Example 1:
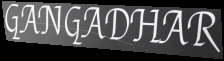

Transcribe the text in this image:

GANGADHAR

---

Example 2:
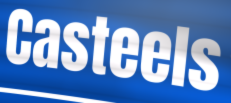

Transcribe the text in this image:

Casteels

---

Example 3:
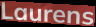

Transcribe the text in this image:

Laurens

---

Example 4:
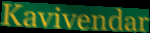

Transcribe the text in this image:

Kavivendar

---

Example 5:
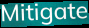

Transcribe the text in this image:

Mitigate